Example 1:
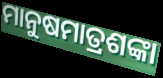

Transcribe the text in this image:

ମାନୁଷମାତ୍ରଶଙ୍କା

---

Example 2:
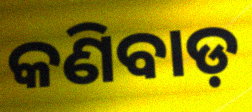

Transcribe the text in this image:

କଣିବାଡ଼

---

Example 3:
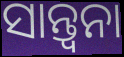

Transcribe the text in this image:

ସାନ୍ତ୍ଵନା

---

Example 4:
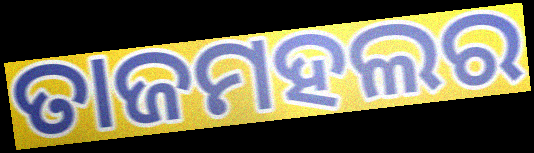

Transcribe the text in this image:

ତାଜମହଲର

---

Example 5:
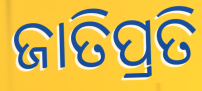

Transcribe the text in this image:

ଜାତିପ୍ରତି